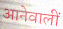
आनेवालीं